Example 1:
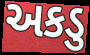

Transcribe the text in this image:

અકડુ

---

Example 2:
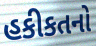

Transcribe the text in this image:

હકીકતનો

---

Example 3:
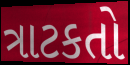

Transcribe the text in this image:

ત્રાટકતો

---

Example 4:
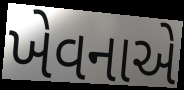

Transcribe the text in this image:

ખેવનાએ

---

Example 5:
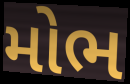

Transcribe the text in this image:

મોભ